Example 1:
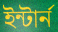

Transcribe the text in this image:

ইন্টার্ন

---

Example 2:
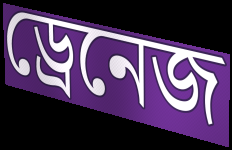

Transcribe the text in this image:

ড্রেনেজ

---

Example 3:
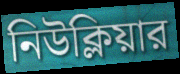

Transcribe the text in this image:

নিউক্লিয়ার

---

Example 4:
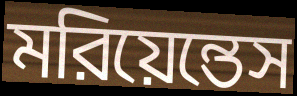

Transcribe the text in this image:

মরিয়েন্তেস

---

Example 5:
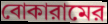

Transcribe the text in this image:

বোকারামের